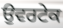
ਉਵਰਟੇਕ